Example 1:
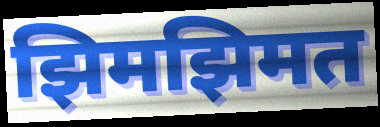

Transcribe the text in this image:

झिमझिमत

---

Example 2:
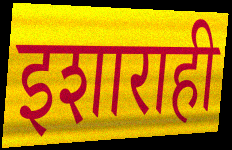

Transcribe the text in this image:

इशाराही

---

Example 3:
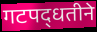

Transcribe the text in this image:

गटपद्धतीने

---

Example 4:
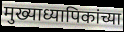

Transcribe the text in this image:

मुख्याध्यापिकांच्या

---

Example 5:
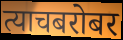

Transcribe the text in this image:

त्याचबरोबर